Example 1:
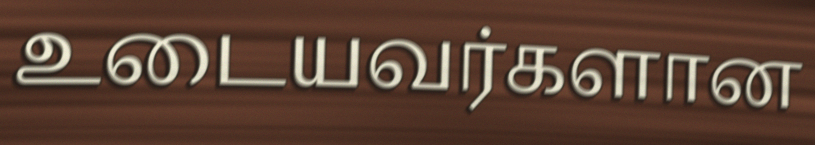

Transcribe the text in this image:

உடையவர்களான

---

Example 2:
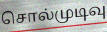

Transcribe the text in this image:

சொல்முடிவு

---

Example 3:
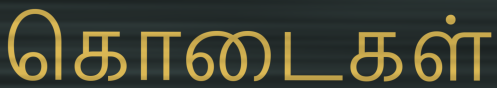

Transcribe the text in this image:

கொடைகள்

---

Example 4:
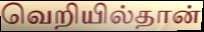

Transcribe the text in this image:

வெறியில்தான்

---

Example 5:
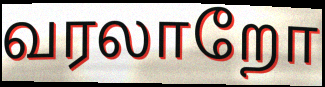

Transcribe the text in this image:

வரலாறோ